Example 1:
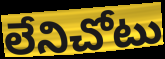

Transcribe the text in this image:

లేనిచోటు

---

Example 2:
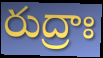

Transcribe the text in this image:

రుద్రాః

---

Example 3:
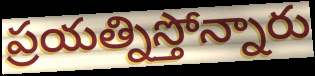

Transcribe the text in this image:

ప్రయత్నిస్తోన్నారు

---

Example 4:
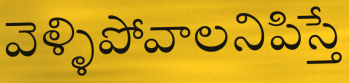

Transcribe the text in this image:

వెళ్ళిపోవాలనిపిస్తే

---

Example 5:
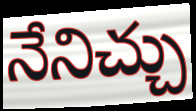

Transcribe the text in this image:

నేనిచ్చు